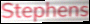
Stephens